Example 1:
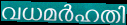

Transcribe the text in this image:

വധമർഹതി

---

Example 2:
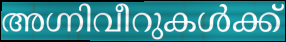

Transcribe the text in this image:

അഗ്നിവീറുകൾക്ക്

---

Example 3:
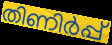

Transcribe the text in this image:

തിണിർപ്പ്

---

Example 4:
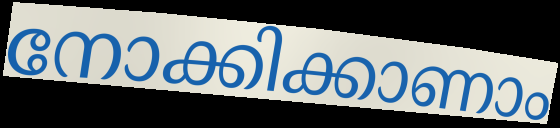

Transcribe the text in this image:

നോക്കിക്കാണാം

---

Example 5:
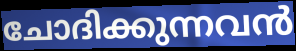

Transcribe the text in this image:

ചോദിക്കുന്നവൻ